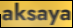
aksaya